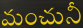
మంచునీ